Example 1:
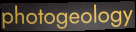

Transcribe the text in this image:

photogeology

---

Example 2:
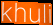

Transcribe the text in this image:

khuli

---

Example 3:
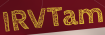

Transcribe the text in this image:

IRVTam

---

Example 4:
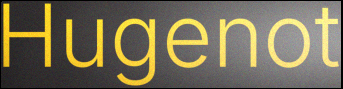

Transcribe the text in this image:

Hugenot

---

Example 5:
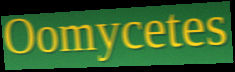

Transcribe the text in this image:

Oomycetes